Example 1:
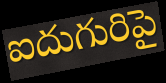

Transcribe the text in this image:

ఐదుగురిపై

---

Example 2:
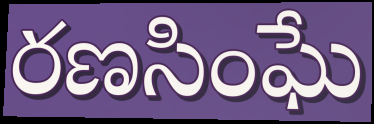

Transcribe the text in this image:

రణసింఘే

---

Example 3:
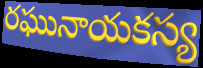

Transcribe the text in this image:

రఘునాయకస్య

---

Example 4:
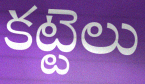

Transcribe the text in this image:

కట్టెలు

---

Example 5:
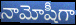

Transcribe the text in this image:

నామోషీగా